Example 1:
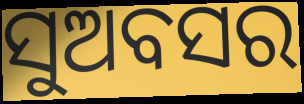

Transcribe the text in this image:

ସୁଅବସର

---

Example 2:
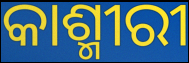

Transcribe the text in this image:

କାଶ୍ମୀରୀ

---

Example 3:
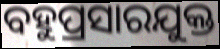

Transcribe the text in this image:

ବହୁପ୍ରସାରଯୁକ୍ତ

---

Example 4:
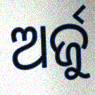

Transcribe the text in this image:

ଅର୍ଜୁ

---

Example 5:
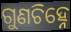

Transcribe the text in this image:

ଗୁଣଚିହ୍ନେ